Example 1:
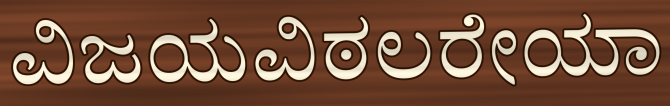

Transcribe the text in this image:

ವಿಜಯವಿಠಲರೇಯಾ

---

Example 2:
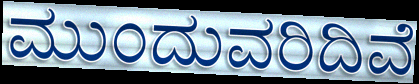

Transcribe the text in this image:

ಮುಂದುವರಿದಿವೆ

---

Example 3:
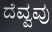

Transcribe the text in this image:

ದೆವ್ವವು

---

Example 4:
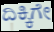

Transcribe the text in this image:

ದಿಕ್ಕಿಗೇ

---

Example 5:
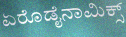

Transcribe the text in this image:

ಏರೊಡೈನಾಮಿಕ್ಸ್